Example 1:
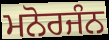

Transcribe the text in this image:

ਮਨੋਰਜੰਨ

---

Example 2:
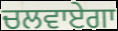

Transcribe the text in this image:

ਚਲਵਾਏਗਾ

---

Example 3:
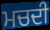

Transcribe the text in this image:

ਮਚਦੀ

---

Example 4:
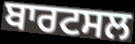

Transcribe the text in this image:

ਬਾਰਟਸਲ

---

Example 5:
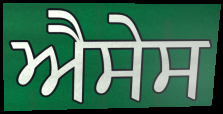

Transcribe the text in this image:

ਐਸੇਸ